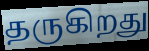
தருகிறது